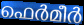
ഫെർമീർ